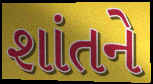
શાંતને